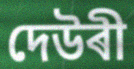
দেউৰী